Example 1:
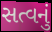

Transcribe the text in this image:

સત્વનું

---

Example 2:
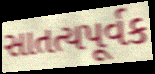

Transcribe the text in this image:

સાતત્યપૂર્વક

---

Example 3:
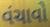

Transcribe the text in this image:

વંચાવો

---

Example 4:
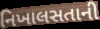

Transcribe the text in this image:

નિખાલસતાની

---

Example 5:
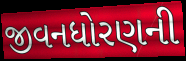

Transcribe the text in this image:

જીવનધોરણની